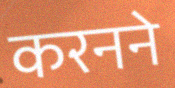
करनने